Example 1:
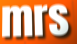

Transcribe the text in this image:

mrs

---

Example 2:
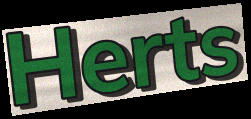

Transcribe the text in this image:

Herts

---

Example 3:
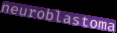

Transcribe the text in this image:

neuroblastoma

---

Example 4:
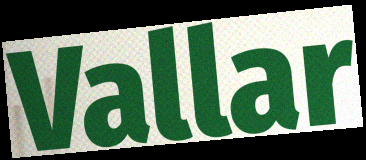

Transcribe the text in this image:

Vallar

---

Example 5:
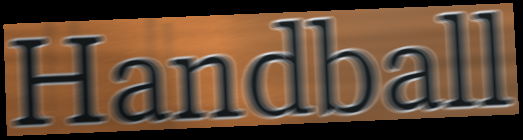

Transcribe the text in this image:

Handball